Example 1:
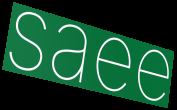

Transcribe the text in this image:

saee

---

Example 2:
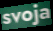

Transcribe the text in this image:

svoja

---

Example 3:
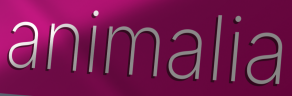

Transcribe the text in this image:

animalia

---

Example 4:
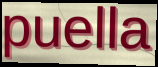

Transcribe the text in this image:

puella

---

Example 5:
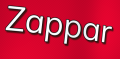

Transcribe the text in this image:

Zappar